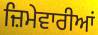
ਜ਼ਿਮੇਵਾਰੀਆਂ